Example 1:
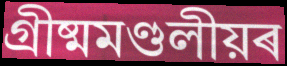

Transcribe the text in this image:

গ্ৰীষ্মমণ্ডলীয়ৰ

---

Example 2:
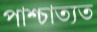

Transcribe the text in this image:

পাশ্চাত্যত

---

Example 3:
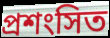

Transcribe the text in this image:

প্ৰশংসিত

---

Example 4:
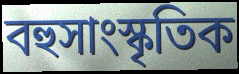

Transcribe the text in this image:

বহুসাংস্কৃতিক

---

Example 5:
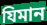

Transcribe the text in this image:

যিমান